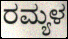
ರಮ್ಯಳ